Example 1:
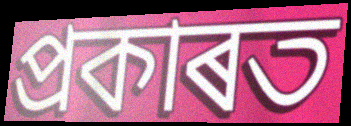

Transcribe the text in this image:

প্ৰকাৰত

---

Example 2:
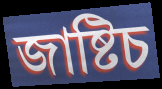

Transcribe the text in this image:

জাষ্টিচ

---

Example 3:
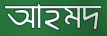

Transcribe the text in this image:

আহমদ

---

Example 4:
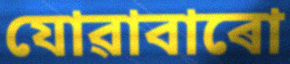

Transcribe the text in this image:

যোৱাবাৰো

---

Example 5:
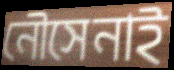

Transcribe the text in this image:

নৌসেনাই